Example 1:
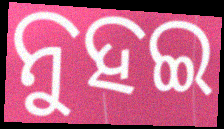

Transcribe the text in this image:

ନୁହଇ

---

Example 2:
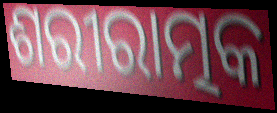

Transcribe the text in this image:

ଶରୀରାତ୍ମକ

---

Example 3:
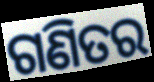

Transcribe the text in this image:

ଗଣିତର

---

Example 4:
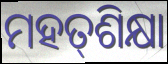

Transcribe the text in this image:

ମହତ୍‌ଶିକ୍ଷା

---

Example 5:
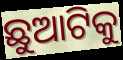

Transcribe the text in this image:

ଛୁଆଟିକୁ